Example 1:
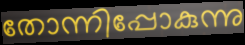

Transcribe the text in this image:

തോന്നിപ്പോകുന്നു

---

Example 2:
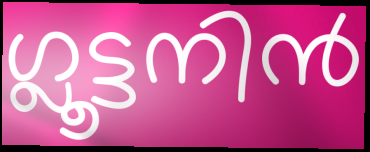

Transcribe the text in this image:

ഗ്ലൂട്ടനിൻ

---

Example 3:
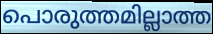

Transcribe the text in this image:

പൊരുത്തമില്ലാത്ത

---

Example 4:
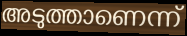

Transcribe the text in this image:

അടുത്താണെന്ന്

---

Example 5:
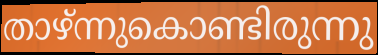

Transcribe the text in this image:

താഴ്ന്നുകൊണ്ടിരുന്നു